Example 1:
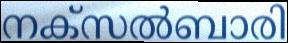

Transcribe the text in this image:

നക്സൽബാരി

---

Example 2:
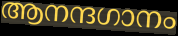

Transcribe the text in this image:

ആനന്ദഗാനം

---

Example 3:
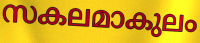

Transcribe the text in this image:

സകലമാകുലം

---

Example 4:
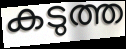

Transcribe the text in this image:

കടുത്ത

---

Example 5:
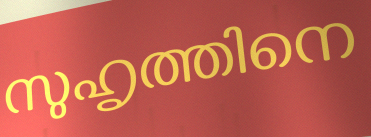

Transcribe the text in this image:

സുഹൃത്തിനെ